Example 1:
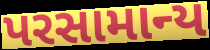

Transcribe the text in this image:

પરસામાન્ય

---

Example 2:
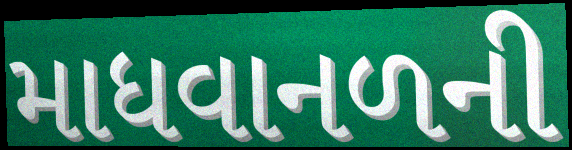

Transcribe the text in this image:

માધવાનળની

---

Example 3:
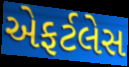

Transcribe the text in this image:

એફર્ટલેસ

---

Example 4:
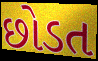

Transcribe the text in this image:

છોડત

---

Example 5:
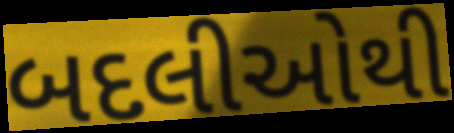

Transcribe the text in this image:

બદલીઓથી